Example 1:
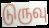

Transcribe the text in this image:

டுருவு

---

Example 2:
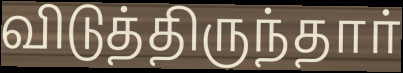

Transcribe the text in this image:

விடுத்திருந்தார்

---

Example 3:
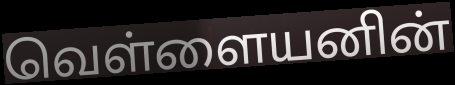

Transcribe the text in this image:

வெள்ளையனின்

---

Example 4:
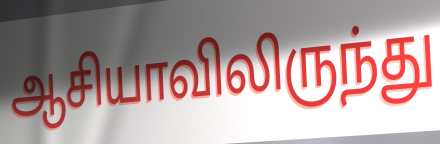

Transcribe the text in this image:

ஆசியாவிலிருந்து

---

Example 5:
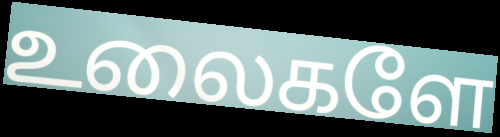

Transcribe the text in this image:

உலைகளே